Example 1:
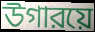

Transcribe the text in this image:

উগারয়ে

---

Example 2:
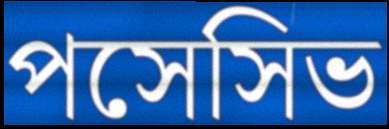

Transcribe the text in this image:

পসেসিভ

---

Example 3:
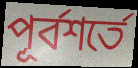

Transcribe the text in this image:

পূর্বশর্তে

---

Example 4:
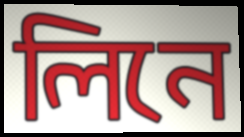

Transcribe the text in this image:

লিনে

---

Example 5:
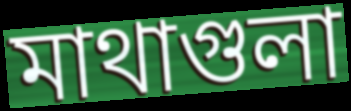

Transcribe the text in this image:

মাথাগুলা